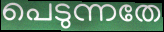
പെടുന്നതേ